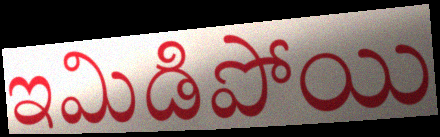
ఇమిడిపోయి